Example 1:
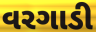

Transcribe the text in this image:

વરગાડી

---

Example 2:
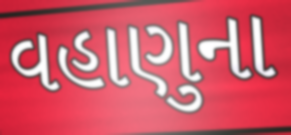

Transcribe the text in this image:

વહાણુના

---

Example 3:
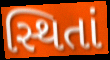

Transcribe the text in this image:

સ્થિતાં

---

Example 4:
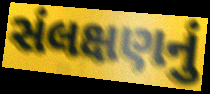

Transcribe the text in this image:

સંલક્ષણનું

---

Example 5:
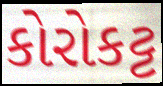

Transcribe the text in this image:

કોરોકટ્ટ